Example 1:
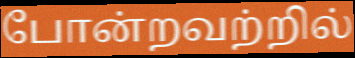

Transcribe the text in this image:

போன்றவற்றில்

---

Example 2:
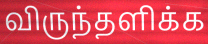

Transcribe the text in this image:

விருந்தளிக்க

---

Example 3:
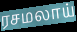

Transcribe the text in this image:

ரசமலாய்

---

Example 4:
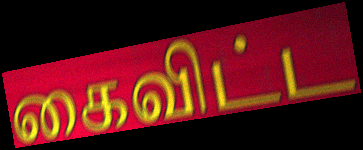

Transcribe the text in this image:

கைவிட்ட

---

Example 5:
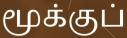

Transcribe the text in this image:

மூக்குப்